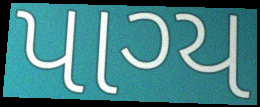
પાગ્ય